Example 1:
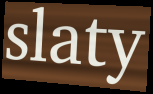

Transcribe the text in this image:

slaty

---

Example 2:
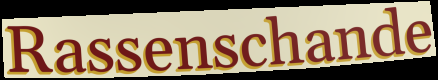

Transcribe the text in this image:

Rassenschande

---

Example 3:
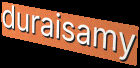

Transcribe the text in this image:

duraisamy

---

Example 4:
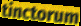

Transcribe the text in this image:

tinctorum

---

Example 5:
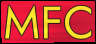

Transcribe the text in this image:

MFC